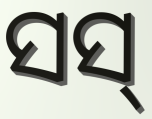
ସସ୍